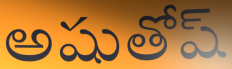
అషుతోష్